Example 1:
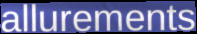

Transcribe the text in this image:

allurements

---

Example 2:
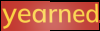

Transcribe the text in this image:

yearned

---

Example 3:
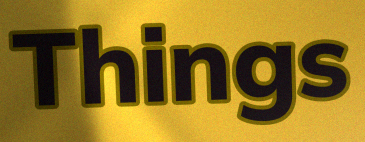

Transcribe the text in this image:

Things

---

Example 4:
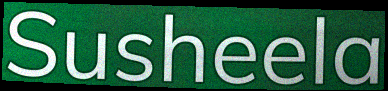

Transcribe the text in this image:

Susheela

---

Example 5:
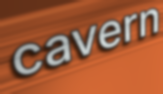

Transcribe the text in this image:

cavern